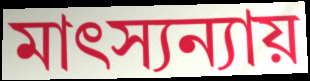
মাৎস্যন্যায়